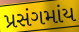
પ્રસંગમાંય